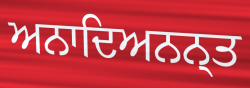
ਅਨਾਦਿਅਨਨ੍ਤ